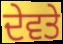
ਦੇਵਤੇ